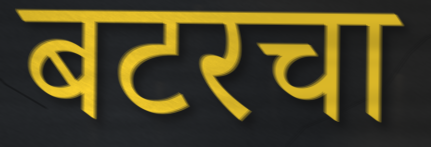
बटरचा